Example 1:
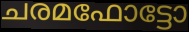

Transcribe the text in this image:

ചരമഫോട്ടോ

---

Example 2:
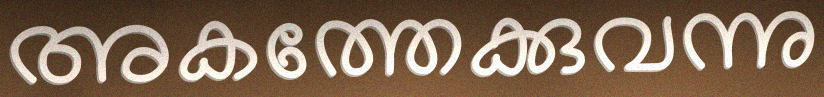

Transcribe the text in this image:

അകത്തേക്കുവന്നു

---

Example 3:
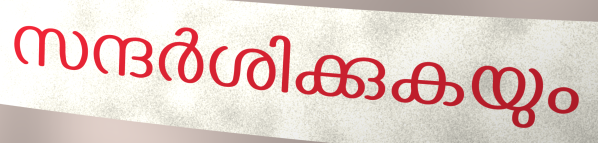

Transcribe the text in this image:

സന്ദർശിക്കുകയും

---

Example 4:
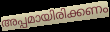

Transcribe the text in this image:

അപ്പമായിരിക്കണം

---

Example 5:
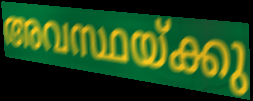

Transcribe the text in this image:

അവസ്ഥയ്ക്കു